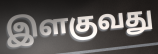
இளகுவது